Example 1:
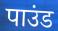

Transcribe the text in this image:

पाउंड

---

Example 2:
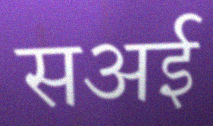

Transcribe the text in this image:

सअई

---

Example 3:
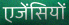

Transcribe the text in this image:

एजेंसियों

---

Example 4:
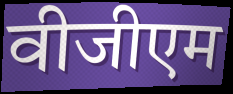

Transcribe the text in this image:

वीजीएम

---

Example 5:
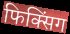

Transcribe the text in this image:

फिक्सिंग